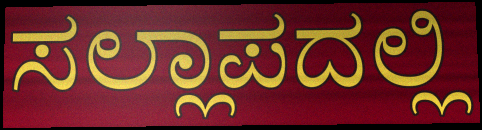
ಸಲ್ಲಾಪದಲ್ಲಿ